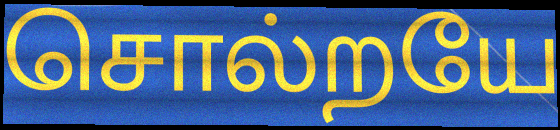
சொல்றயே